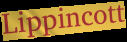
Lippincott